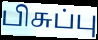
பிசுப்பு